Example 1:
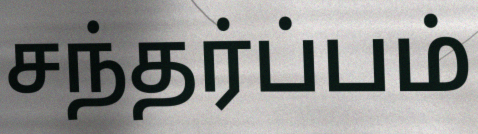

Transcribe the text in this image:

சந்தர்ப்பம்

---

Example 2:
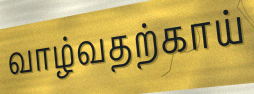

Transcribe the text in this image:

வாழ்வதற்காய்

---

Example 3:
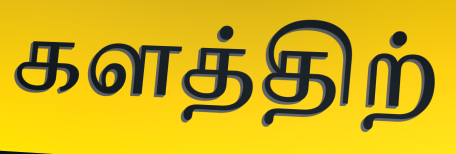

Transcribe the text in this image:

களத்திற்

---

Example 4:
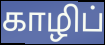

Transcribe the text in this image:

காழிப்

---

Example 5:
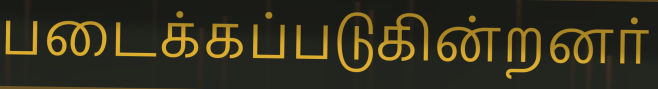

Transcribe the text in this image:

படைக்கப்படுகின்றனர்